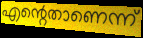
എന്റെതാണെന്ന്